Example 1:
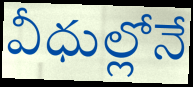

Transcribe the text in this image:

వీధుల్లోనే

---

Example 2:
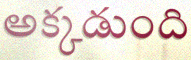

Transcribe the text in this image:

అక్కడుంది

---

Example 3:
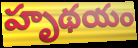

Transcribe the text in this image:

హృథయం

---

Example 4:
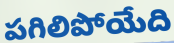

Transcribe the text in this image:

పగిలిపోయేది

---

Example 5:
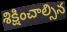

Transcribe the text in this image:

శిక్షించాల్సిన